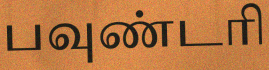
பவுண்டரி